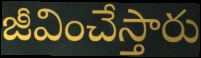
జీవించేస్తారు